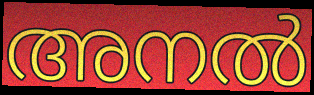
അനൽ